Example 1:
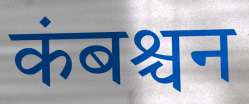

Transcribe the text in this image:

कंबश्चन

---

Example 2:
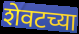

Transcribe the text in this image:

शेवटच्या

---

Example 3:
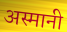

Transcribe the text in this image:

अस्मानी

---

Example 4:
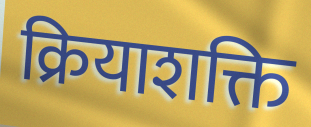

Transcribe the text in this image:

क्रियाशक्ति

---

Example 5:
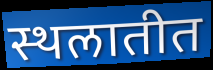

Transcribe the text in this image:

स्थलातीत